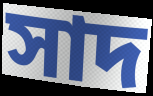
সাদ